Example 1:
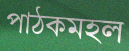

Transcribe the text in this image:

পাঠকমহল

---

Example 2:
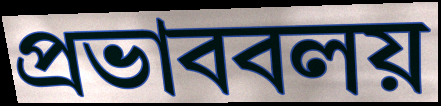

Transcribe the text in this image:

প্রভাববলয়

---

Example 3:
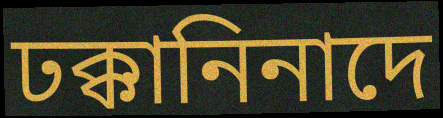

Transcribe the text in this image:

ঢক্কানিনাদে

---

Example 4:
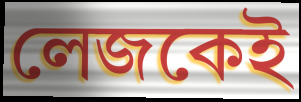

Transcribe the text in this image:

লেজকেই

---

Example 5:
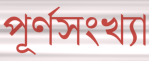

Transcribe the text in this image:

পূর্ণসংখ্যা